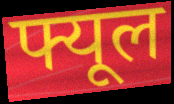
फ्यूल